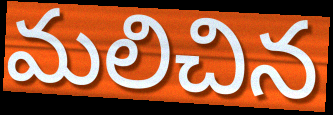
మలిచిన